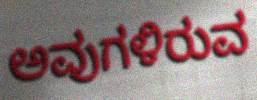
ಅವುಗಳಿರುವ